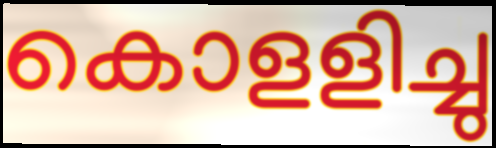
കൊളളിച്ചു